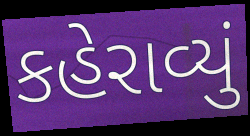
કહેરાવ્યું